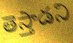
తెస్తాడని